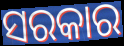
ସରକାର